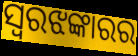
ସ୍ୱରଝଙ୍କାରର